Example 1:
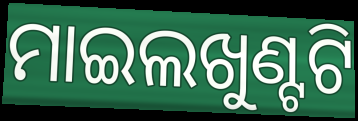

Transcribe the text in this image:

ମାଇଲଖୁଣ୍ଟଟି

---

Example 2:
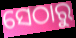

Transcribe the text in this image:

ସେଠାରୁ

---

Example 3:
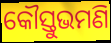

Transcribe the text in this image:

କୌସ୍ତୁଭମଣି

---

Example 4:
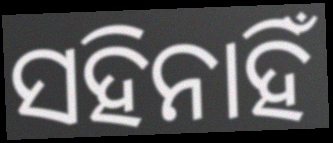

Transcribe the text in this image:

ସହିନାହିଁ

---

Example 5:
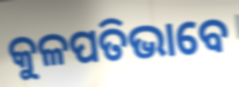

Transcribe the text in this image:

କୁଳପତିଭାବେ